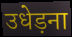
उधेड़ना